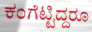
ಕಂಗೆಟ್ಟಿದ್ದರೂ